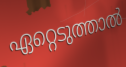
ഏറ്റെടുത്താൽ